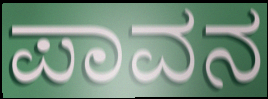
ಪಾವನ